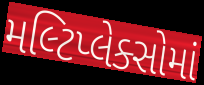
મલ્ટિપ્લેક્સોમાં